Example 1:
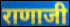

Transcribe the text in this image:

राणाजी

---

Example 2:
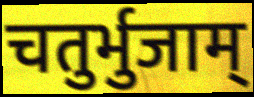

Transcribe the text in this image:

चतुर्भुजाम्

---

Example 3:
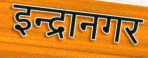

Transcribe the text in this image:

इन्द्रानगर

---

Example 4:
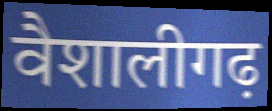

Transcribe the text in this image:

वैशालीगढ़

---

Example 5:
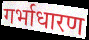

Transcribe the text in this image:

गर्भाधारण